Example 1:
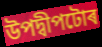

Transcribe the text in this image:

উপদ্বীপটোৰ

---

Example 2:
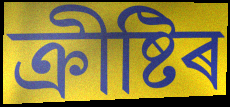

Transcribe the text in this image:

ক্ৰীষ্টিৰ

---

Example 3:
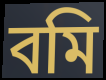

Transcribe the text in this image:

বমি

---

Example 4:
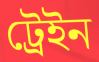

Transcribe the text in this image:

ট্ৰেইন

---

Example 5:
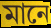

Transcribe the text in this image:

মানে